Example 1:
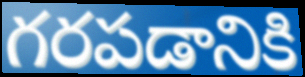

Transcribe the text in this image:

గరపడానికి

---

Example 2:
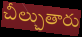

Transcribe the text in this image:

చీల్చుతారు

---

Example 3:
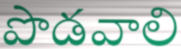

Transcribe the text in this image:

పొడవాలి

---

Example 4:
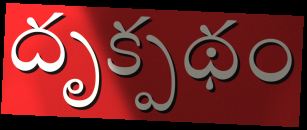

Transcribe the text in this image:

దృక్పథం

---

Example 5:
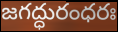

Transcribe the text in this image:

జగద్ధురంధరః